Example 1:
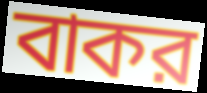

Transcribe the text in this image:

বাকর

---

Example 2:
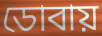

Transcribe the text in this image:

ডোবায়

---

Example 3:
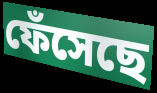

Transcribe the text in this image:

ফেঁসেছে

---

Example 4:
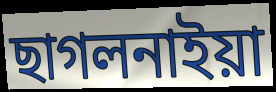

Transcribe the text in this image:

ছাগলনাইয়া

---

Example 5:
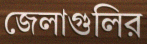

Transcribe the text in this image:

জেলাগুলির